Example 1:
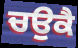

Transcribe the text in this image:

ਚਉਕੈ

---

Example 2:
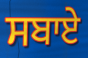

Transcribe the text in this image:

ਸਬਾਏ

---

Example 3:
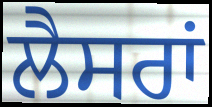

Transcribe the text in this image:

ਲੈਸਰਾਂ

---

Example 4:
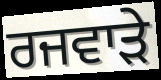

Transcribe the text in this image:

ਰਜਵਾੜੇ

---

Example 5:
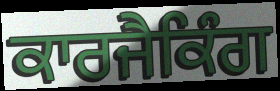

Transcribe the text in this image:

ਕਾਰਜੈਕਿੰਗ